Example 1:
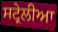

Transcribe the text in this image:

ਸਟ੍ਰੇਲੀਆ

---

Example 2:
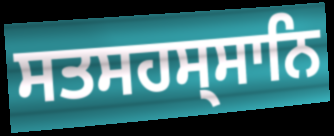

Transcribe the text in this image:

ਸਤਸਹਸ੍ਸਾਨਿ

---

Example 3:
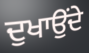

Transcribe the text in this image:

ਦੁਖਾਉਂਦੇ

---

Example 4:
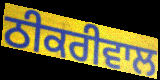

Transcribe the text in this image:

ਠੀਕਰੀਵਾਲ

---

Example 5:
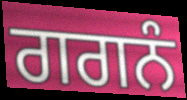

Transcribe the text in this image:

ਗਗਨੰ